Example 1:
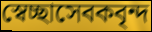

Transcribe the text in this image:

স্বেচ্ছাসেবকবৃন্দ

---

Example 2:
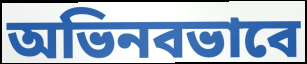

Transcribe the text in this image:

অভিনবভাবে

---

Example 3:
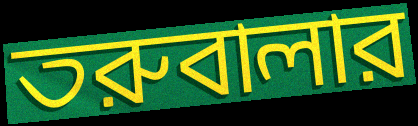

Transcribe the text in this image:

তরুবালার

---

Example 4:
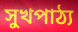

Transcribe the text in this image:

সুখপাঠ্য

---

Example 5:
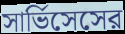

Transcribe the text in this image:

সার্ভিসেসের